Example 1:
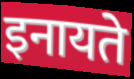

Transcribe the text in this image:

इनायते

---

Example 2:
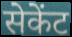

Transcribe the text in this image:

सेकेंट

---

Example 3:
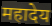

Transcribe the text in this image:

महादेय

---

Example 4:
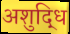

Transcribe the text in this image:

अशुद्धि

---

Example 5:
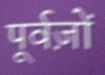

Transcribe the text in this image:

पूर्वज़ों